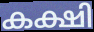
കക്ഷി